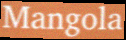
Mangola